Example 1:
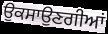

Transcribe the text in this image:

ਉਕਸਾਉਣਗੀਆਂ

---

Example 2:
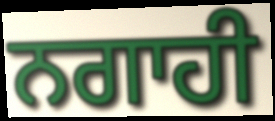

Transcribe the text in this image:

ਨਗਾਹੀ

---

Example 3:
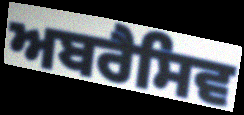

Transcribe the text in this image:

ਅਬਰੈਸਿਵ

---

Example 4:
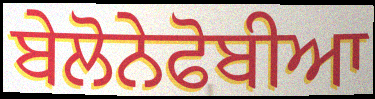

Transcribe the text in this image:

ਬੇਲੋਨੇਫੋਬੀਆ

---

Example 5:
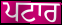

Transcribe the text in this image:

ਪਟਾਰ